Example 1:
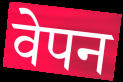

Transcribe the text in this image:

वेपन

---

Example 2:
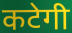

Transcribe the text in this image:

कटेगी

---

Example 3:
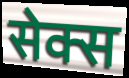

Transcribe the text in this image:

सेक्स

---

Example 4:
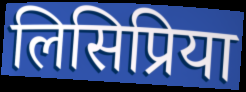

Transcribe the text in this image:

लिसिप्रिया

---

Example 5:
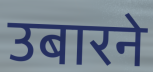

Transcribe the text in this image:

उबारने